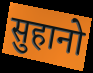
सुहानो